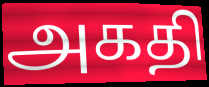
அகதி